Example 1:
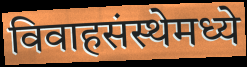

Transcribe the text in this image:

विवाहसंस्थेमध्ये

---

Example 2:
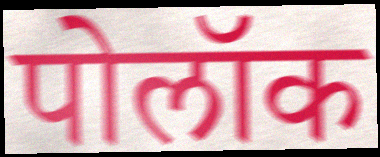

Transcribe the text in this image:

पोलॉक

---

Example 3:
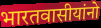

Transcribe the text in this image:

भारतवासीयांनो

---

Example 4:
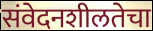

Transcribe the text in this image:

संवेदनशीलतेचा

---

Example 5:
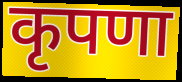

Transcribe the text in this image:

कृपणा